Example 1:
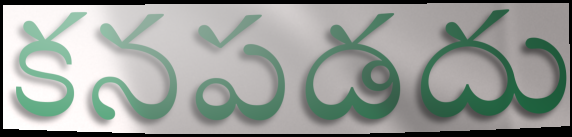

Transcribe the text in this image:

కనపడదు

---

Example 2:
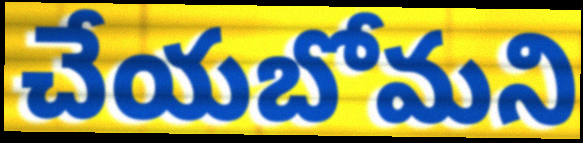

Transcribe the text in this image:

చేయబోమని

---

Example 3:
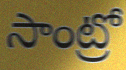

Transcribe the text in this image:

సాంట్రో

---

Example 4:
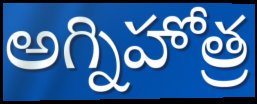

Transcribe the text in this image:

అగ్నిహోత్ర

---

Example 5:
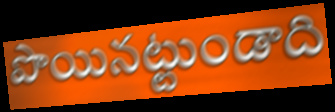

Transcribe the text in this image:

పొయినట్టుండాది